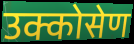
उक्कोसेण